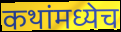
कथांमध्येच